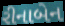
રીનાબેન